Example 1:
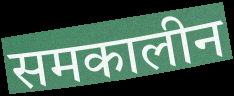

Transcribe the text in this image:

समकालीन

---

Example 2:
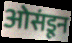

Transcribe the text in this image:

ओसंडून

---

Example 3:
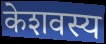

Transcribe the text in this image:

केशवस्य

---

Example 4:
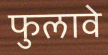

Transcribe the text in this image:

फुलावे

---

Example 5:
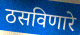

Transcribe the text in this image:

ठसविणारे